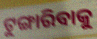
ଟୁଙ୍ଗାରିବାକୁ